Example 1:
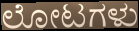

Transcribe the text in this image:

ಲೋಟಗಳು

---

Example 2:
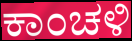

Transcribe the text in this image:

ಕಾಂಚಳಿ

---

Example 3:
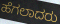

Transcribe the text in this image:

ಹೆಗಲಾದರು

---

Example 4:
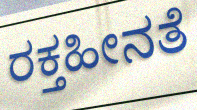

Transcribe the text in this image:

ರಕ್ತಹೀನತೆ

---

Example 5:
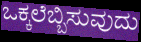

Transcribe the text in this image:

ಒಕ್ಕಲೆಬ್ಬಿಸುವುದು